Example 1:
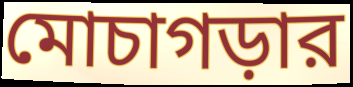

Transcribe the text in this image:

মোচাগড়ার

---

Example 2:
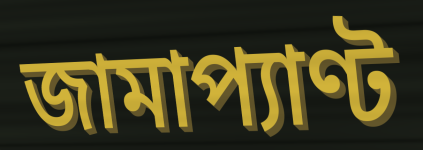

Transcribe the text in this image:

জামাপ্যাণ্ট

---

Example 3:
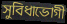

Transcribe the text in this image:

সুবিধাভোগী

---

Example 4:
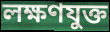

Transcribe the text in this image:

লক্ষণযুক্ত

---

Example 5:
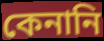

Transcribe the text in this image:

কেনানি